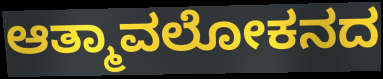
ಆತ್ಮಾವಲೋಕನದ